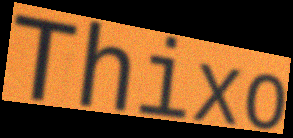
Thixo